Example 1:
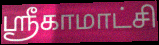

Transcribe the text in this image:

ஸ்ரீகாமாட்சி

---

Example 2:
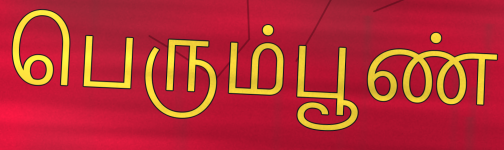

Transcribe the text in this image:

பெரும்பூண்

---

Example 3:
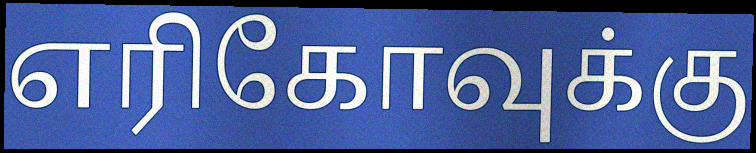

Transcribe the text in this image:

எரிகோவுக்கு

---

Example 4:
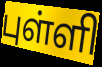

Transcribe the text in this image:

புள்ளி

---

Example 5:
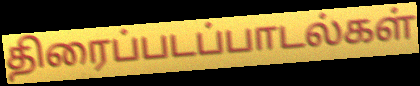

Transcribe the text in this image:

திரைப்படப்பாடல்கள்